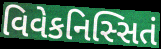
વિવેકનિસ્સિતં